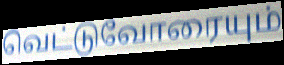
வெட்டுவோரையும்